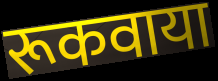
रूकवाया